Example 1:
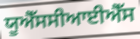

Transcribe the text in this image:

ਯੂਐੱਸਸੀਆਈਐੱਸ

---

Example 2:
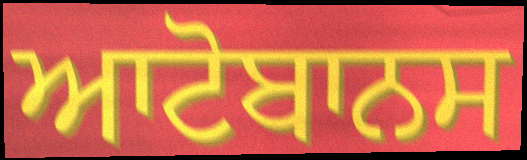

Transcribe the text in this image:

ਆਟੋਬਾਨਸ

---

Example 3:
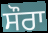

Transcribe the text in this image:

ਸੌਰਾ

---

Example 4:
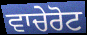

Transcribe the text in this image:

ਵਾਚੇਰੋਟ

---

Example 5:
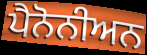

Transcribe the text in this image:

ਪੈਨੋਨੀਅਨ